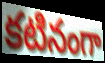
కటినంగా